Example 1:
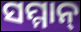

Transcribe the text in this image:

ସମ୍ମାନ୍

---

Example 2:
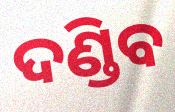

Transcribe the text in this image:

ଦଣ୍ଡିବ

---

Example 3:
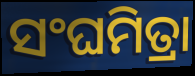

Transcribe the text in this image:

ସଂଘମିତ୍ରା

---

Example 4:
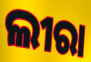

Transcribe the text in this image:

ଲୀରା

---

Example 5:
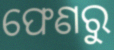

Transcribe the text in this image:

ଫେଣରୁ